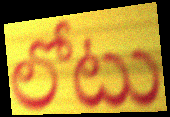
లోటు